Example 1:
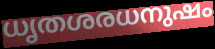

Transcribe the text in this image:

ധൃതശരധനുഷം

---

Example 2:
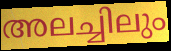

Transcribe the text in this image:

അലച്ചിലും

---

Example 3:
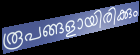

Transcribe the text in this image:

രൂപങ്ങളായിരിക്കും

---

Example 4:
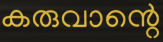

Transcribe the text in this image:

കരുവാന്റെ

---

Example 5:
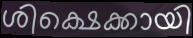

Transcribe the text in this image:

ശിക്ഷെക്കായി